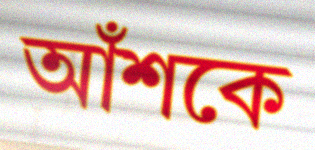
আঁশকে